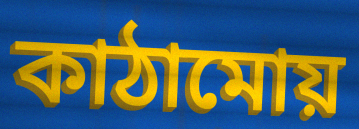
কাঠামোয়